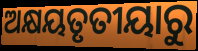
ଅକ୍ଷୟତୃତୀୟାରୁ